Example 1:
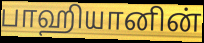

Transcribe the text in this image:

பாஹியானின்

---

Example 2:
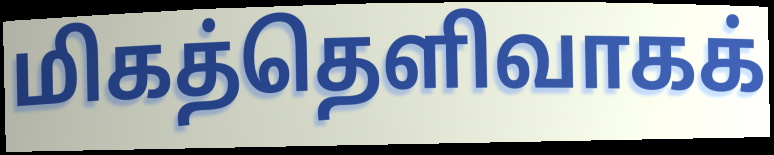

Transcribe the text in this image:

மிகத்தெளிவாகக்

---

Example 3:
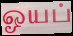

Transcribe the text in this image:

ஓயப்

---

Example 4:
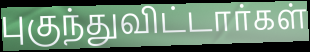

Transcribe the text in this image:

புகுந்துவிட்டார்கள்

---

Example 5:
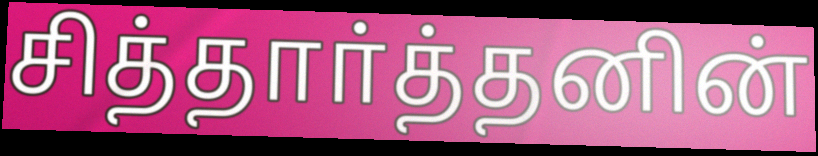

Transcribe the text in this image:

சித்தார்த்தனின்